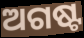
ଅଗଷ୍ଟ